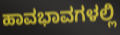
ಹಾವಭಾವಗಳಲ್ಲಿ